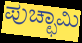
ಪುಚ್ಛಾಮಿ